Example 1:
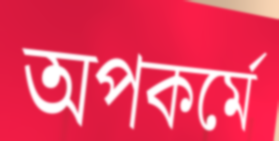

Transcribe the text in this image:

অপকর্মে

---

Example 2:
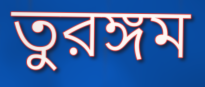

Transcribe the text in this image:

তুরঙ্গম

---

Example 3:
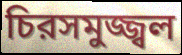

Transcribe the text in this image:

চিরসমুজ্জ্বল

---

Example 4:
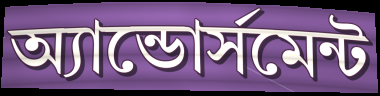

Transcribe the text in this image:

অ্যান্ডোর্সমেন্ট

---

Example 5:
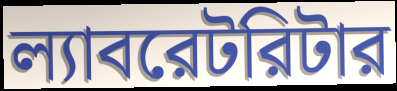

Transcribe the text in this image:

ল্যাবরেটরিটার